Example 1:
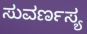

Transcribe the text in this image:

ಸುವರ್ಣಸ್ಯ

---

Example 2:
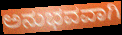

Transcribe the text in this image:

ಅನುಭವವಾಗಿ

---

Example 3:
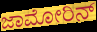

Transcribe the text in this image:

ಜಾಮೋರಿನ್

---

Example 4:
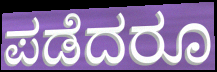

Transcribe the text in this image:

ಪಡೆದರೂ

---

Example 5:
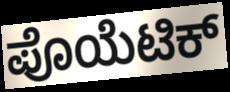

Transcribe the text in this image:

ಪೊಯೆಟಿಕ್